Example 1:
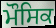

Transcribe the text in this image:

ਮੌਸਿਕ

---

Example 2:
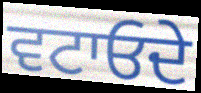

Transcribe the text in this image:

ਵਟਾਓਦੇ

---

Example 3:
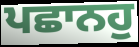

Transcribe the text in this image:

ਪਛਾਨਹੁ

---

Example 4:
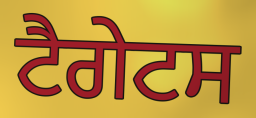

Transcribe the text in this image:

ਟੈਗੇਟਸ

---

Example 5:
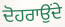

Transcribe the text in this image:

ਦੋਹਰਾਉਂਦੇ